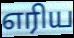
எரிய